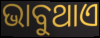
ଭାବୁଥାଏ